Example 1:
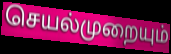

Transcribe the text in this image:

செயல்முறையும்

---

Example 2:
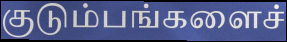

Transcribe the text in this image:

குடும்பங்களைச்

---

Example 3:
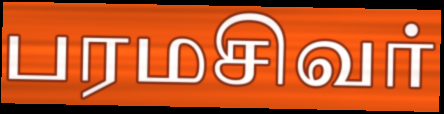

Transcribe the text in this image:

பரமசிவர்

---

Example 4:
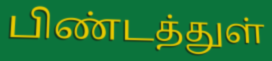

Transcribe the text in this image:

பிண்டத்துள்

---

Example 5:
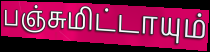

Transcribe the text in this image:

பஞ்சுமிட்டாயும்